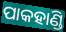
ପାକହାଣ୍ଡି